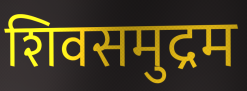
शिवसमुद्रम